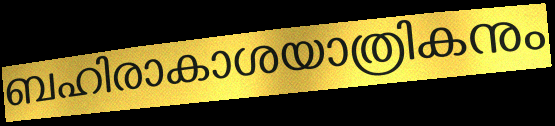
ബഹിരാകാശയാത്രികനും